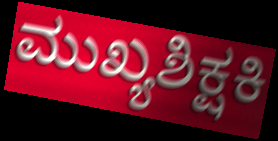
ಮುಖ್ಯಶಿಕ್ಷಕಿ